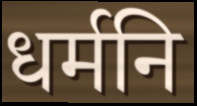
धर्मनि